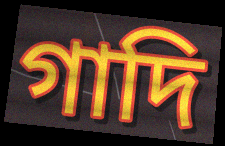
গাদি